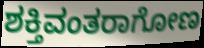
ಶಕ್ತಿವಂತರಾಗೋಣ